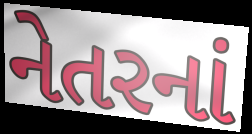
નેતરનાં